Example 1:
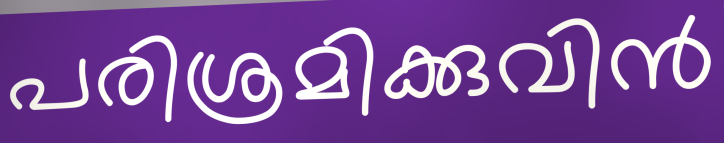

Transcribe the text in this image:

പരിശ്രമിക്കുവിൻ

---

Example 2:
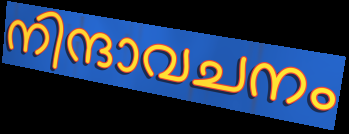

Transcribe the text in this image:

നിന്ദാവചനം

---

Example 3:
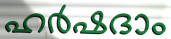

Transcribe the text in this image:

ഹർഷദാം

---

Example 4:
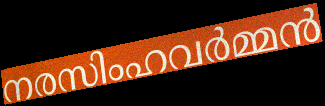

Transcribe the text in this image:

നരസിംഹവർമ്മൻ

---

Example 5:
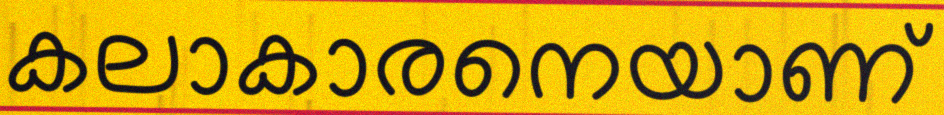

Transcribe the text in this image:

കലാകാരനെയാണ്